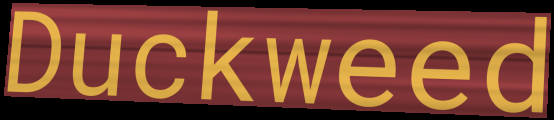
Duckweed